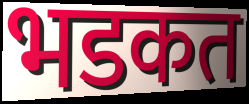
भडकत